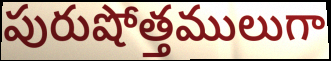
పురుషోత్తములుగా